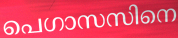
പെഗാസസിനെ